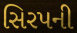
સિરપની